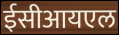
ईसीआयएल